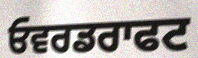
ਓਵਰਡਰਾਫਟ